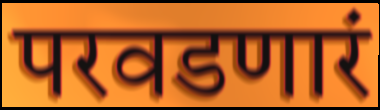
परवडणारं